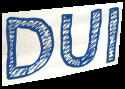
DUI